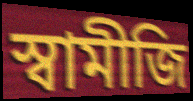
স্বামীজি